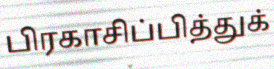
பிரகாசிப்பித்துக்